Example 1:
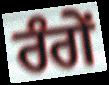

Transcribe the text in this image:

ਰੰਗੇਂ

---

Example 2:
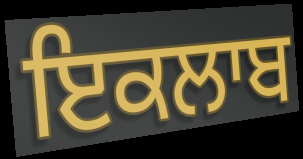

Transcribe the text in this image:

ਇਕਲਾਬ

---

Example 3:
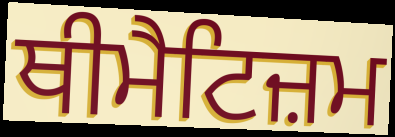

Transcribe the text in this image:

ਥੀਮੈਟਿਜ਼ਮ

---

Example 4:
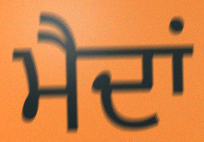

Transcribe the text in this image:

ਮੈਦਾਂ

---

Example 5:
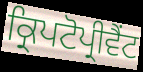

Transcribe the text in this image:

ਕ੍ਰਿਪਟੋਪ੍ਰੀਵੈਂਟ